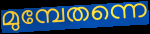
മുമ്പേതന്നെ